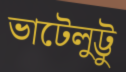
ভাটেলুট্টু